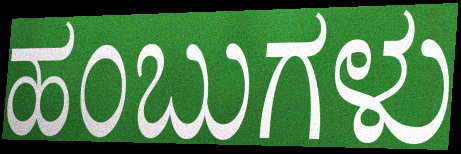
ಹಂಬುಗಳು